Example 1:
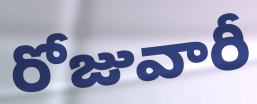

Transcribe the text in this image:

రోజువారీ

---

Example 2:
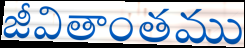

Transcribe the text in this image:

జీవితాంతము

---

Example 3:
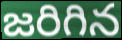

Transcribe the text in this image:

జరిగిన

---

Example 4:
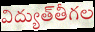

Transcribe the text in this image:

విద్యుత్‌తీగల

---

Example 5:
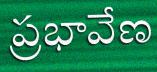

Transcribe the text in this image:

ప్రభావేణ